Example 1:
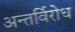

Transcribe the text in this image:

अन्तर्विरोध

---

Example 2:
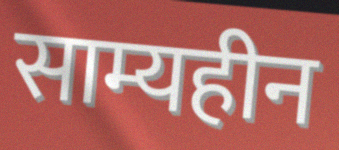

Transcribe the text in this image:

साम्यहीन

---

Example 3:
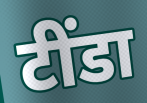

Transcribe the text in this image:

टींडा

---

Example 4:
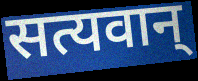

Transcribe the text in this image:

सत्यवान्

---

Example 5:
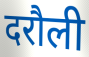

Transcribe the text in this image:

दरौली